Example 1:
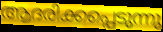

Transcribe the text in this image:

ആദരിക്കപ്പെടുന്നു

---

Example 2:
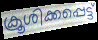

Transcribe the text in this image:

ക്രൂശിക്കപ്പെട്ട്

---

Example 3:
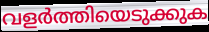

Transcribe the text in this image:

വളർത്തിയെടുക്കുക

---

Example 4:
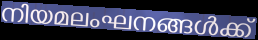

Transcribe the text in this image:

നിയമലംഘനങ്ങൾക്ക്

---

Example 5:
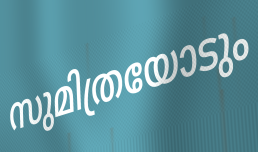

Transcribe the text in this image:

സുമിത്രയോടും